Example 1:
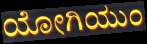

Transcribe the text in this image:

ಯೋಗಿಯುಂ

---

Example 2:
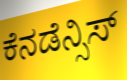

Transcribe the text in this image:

ಕೆನಡೆನ್ಸಿಸ್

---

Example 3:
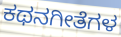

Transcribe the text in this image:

ಕಥನಗೀತೆಗಳ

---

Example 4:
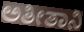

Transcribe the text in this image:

ಅತೀತಾನಿ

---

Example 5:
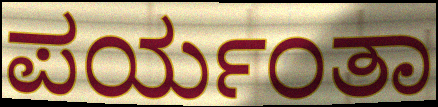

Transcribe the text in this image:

ಪರ್ಯಂತಾ